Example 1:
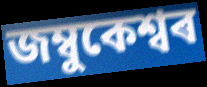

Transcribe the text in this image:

জম্বুকেশ্বৰ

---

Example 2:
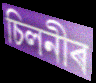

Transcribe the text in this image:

চিলনীৰ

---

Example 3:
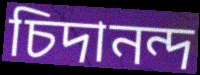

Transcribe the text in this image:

চিদানন্দ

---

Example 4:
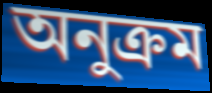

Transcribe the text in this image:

অনুক্ৰম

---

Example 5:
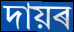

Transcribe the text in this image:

দায়ৰ